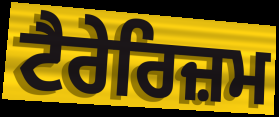
ਟੈਰੇਰਿਜ਼ਮ